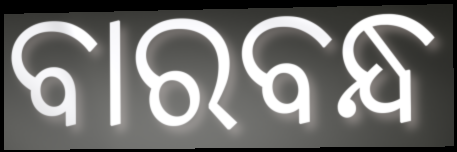
ବାରବନ୍ଧ